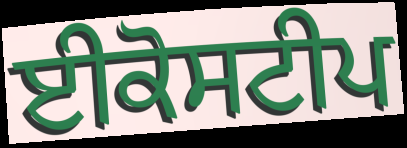
ਈਕੋਸਟੀਪ